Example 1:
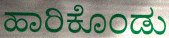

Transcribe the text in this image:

ಹಾರಿಕೊಂಡು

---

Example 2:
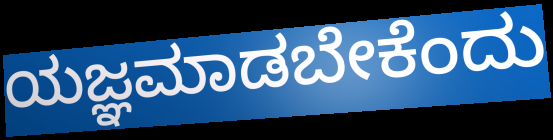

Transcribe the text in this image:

ಯಜ್ಞಮಾಡಬೇಕೆಂದು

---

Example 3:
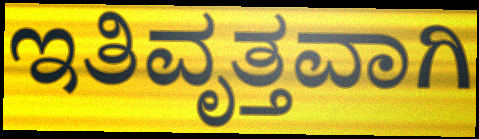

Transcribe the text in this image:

ಇತಿವೃತ್ತವಾಗಿ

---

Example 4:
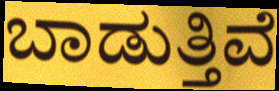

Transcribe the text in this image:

ಬಾಡುತ್ತಿವೆ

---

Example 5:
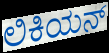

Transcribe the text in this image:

ಲಿಕಿಯನ್